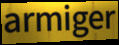
armiger